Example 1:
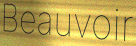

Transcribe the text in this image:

Beauvoir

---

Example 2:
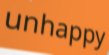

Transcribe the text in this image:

unhappy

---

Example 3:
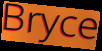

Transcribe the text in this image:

Bryce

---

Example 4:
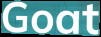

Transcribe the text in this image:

Goat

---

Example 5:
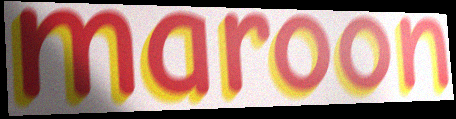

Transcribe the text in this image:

maroon